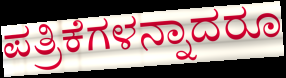
ಪತ್ರಿಕೆಗಳನ್ನಾದರೂ